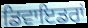
ਡਿਵਾਇਡਰਾਂ